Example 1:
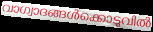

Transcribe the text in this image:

വാഗ്വാദങ്ങൾക്കൊടുവിൽ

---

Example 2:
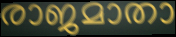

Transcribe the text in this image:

രാജമാതാ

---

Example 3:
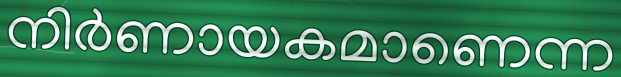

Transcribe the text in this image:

നിർണായകമാണെന്ന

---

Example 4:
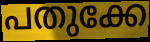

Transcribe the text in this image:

പതുക്കേ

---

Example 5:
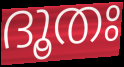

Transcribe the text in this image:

ദൂതഃ